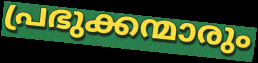
പ്രഭുക്കന്മാരും